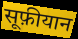
सूफ़ीयान